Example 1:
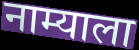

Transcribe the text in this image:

नाम्याला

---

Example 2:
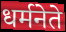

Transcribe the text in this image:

धर्मनेते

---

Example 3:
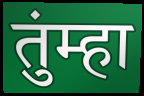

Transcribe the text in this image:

तुंम्हा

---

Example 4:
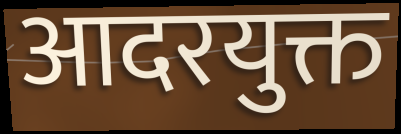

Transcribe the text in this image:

आदरयुक्त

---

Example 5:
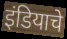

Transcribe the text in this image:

इंडियाचे